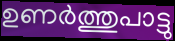
ഉണർത്തുപാട്ടു